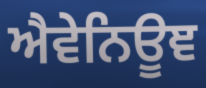
ਐਵੇਨਿਊਞ